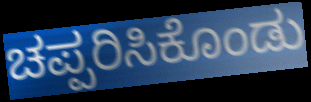
ಚಪ್ಪರಿಸಿಕೊಂಡು